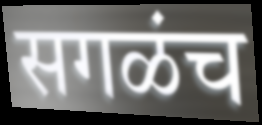
सगळंच